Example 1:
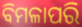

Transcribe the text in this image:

ବିମଳାପରି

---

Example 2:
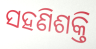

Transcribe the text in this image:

ସହଣିଶକ୍ତି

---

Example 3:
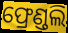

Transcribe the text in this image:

ଫ୍ରେଣ୍ଡଲି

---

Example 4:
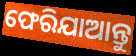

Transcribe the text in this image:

ଫେରିଯାଆନ୍ତୁ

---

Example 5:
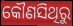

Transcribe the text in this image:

କୌଣସିଥିରୁ